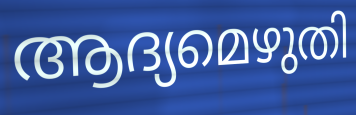
ആദ്യമെഴുതി